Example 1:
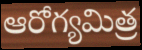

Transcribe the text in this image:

ఆరోగ్యమిత్ర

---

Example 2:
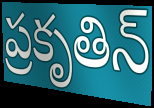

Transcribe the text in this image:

ప్రకృతిన్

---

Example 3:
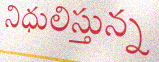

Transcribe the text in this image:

నిధులిస్తున్న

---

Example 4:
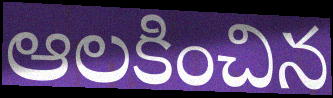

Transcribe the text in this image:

ఆలకించిన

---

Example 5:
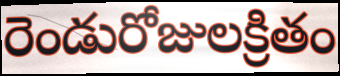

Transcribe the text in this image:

రెండురోజులక్రితం